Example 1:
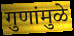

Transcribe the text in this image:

गुणांमुळे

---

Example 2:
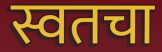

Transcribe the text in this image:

स्वतचा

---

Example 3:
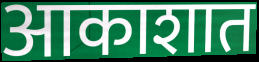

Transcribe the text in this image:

आकाशात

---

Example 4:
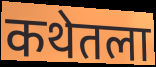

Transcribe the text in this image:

कथेतला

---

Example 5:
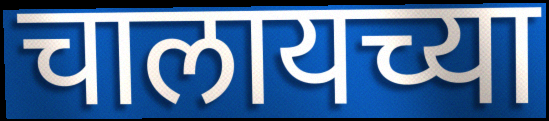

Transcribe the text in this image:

चालायच्या